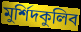
মুর্শিদকুলিব